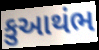
કુઆથંભ